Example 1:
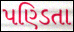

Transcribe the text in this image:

પણ્ડિતા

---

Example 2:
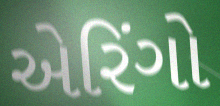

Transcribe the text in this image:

એરિંગો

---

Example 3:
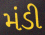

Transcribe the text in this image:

મંડી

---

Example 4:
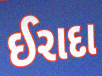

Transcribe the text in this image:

ઈરાદા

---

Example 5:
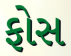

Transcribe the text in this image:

ફોસ